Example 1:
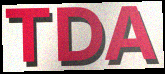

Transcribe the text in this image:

TDA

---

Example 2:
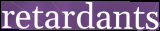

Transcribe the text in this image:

retardants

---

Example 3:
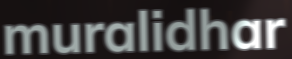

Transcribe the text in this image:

muralidhar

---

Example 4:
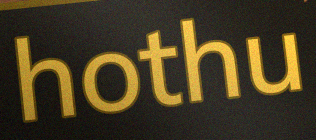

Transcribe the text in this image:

hothu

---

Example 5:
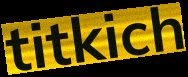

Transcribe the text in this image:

titkich